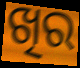
ଖିର